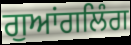
ਗੁਆਂਗਲਿੰਗ